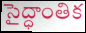
సైద్ధాంతిక